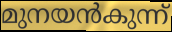
മുനയൻകുന്ന്